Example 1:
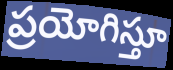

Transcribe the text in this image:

ప్రయోగిస్తూ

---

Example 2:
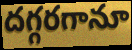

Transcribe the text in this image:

దగ్గరగానూ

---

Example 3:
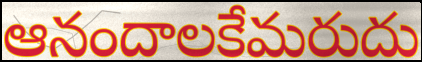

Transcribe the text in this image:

ఆనందాలకేమరుదు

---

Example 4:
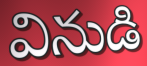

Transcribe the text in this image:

వినుడి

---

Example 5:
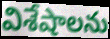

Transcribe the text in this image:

విశేషాలను